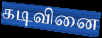
கடிவினை